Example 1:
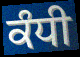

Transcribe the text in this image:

ਕੰਧੀ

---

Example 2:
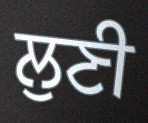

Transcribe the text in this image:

ਲੁਣੀ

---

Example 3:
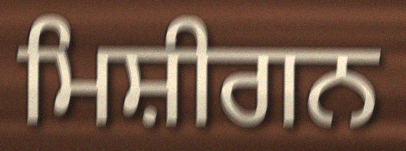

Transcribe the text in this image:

ਮਿਸ਼ੀਗਨ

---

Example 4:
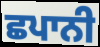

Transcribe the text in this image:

ਛਪਾਨੀ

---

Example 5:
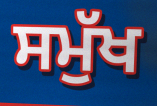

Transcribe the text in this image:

ਸਮੁੱਖ